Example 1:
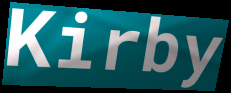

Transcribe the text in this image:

Kirby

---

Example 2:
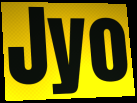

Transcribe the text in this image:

Jyo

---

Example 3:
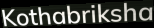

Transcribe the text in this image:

Kothabriksha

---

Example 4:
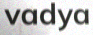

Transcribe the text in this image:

vadya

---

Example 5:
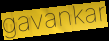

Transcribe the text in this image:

gavankar